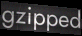
gzipped